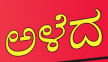
ಅಳೆದ